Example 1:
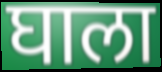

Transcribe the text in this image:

घाला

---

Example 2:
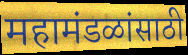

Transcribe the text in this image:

महामंडळांसाठी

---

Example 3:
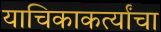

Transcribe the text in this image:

याचिकाकर्त्यांचा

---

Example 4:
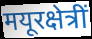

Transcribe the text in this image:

मयूरक्षेत्रीं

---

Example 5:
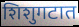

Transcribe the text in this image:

शिशुगटात